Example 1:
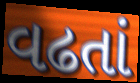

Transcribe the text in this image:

વઢતાં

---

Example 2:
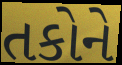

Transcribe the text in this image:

તકોને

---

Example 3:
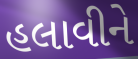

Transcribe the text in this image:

હલાવીને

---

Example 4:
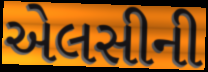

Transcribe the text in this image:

એલસીની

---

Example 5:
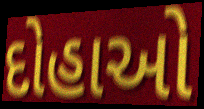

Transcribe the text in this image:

દોહાઓ